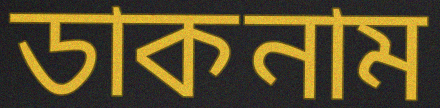
ডাকনাম